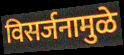
विसर्जनामुळे